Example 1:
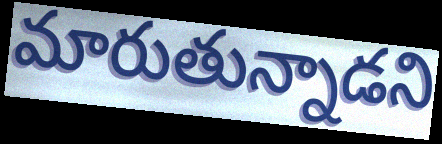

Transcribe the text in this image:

మారుతున్నాడని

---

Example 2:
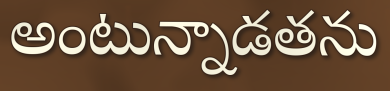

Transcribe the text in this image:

అంటున్నాడతను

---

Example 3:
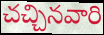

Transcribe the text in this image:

చచ్చినవారి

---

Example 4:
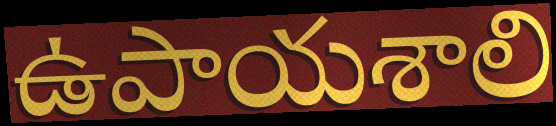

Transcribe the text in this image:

ఉపాయశాలి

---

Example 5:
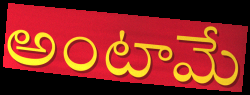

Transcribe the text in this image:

అంటామే